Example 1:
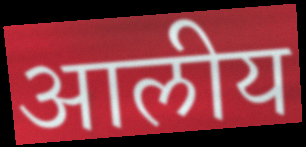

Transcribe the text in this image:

आलीय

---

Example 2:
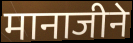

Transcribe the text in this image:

मानाजीने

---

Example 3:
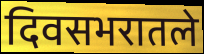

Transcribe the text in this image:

दिवसभरातले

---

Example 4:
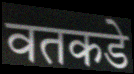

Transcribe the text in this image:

वतकडे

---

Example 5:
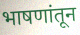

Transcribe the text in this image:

भाषणांतून